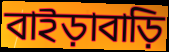
বাইড়াবাড়ি